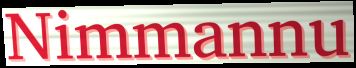
Nimmannu